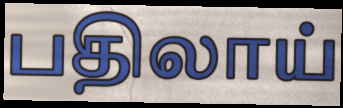
பதிலாய்